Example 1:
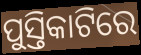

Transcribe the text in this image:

ପୁସ୍ତିକାଟିରେ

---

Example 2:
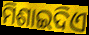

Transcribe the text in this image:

ମିଶାଇଦିଏ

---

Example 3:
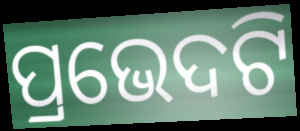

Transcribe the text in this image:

ପ୍ରଭେଦଟି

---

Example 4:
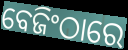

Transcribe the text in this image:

ବେଜିଂଠାରେ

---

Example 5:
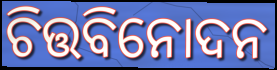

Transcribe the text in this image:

ଚିତ୍ତବିନୋଦନ